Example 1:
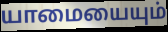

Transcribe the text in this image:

யாமையையும்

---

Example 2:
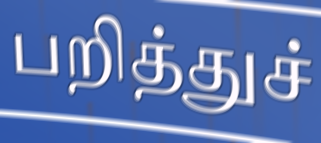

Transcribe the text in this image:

பறித்துச்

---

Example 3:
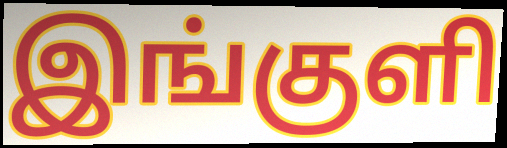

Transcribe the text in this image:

இங்குளி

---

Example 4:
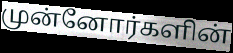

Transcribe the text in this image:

முன்னோர்களின்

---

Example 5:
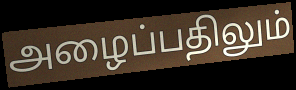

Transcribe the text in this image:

அழைப்பதிலும்